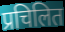
प्रचिलित